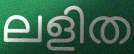
ലളിത